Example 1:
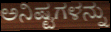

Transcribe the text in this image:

ಅನಿಷ್ಟಗಳನ್ನು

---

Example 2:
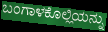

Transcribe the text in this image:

ಬಂಗಾಳಕೊಲ್ಲಿಯನ್ನು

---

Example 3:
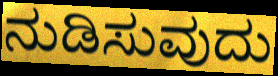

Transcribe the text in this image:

ನುಡಿಸುವುದು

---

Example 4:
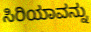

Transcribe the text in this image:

ಸಿರಿಯಾವನ್ನು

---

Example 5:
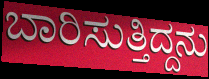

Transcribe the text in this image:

ಬಾರಿಸುತ್ತಿದ್ದನು